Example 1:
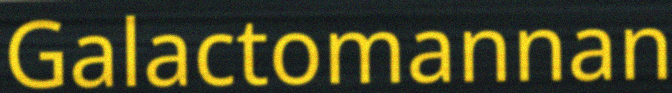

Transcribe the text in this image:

Galactomannan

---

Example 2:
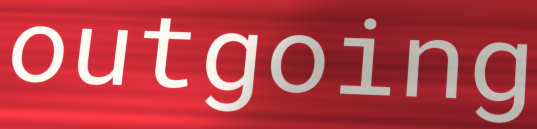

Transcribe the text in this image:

outgoing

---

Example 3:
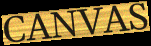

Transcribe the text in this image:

CANVAS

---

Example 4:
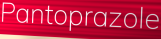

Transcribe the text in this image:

Pantoprazole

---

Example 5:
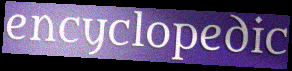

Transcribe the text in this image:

encyclopedic